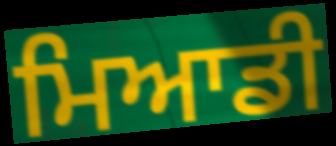
ਮਿਆਡੀ